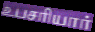
உபசரியார்